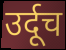
उर्दूच